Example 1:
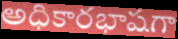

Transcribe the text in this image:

అధికారభాషగా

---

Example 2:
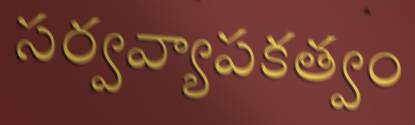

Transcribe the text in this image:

సర్వవ్యాపకత్వం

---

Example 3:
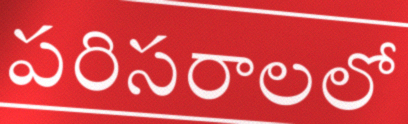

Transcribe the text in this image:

పరిసరాలలో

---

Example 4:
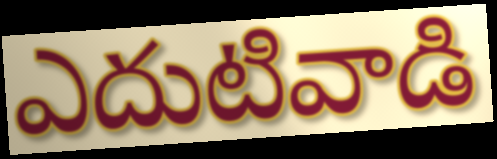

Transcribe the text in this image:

ఎదుటివాడి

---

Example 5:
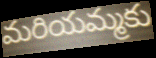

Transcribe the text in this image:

మరియమ్మకు